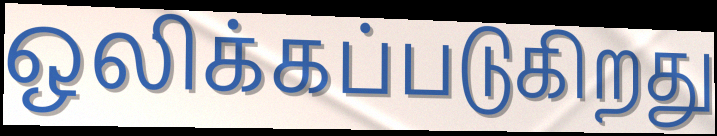
ஒலிக்கப்படுகிறது